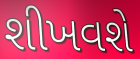
શીખવશે